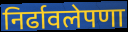
निर्ढावलेपणा